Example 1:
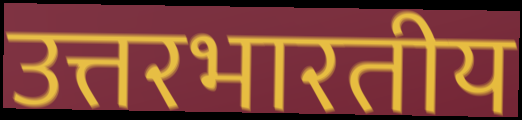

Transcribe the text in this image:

उत्तरभारतीय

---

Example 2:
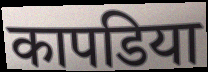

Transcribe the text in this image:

कापडिया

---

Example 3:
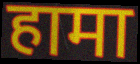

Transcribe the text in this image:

हामा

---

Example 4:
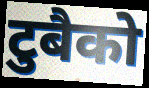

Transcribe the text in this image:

टुबैको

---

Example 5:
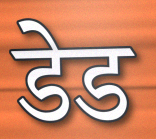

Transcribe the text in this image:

डेड